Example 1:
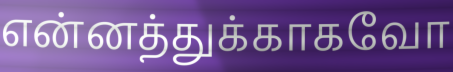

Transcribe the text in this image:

என்னத்துக்காகவோ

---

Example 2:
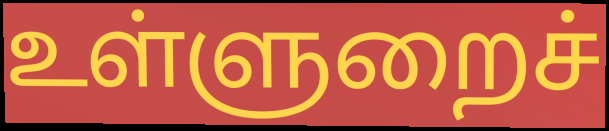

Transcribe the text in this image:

உள்ளுறைச்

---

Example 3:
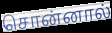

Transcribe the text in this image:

சொன்னால்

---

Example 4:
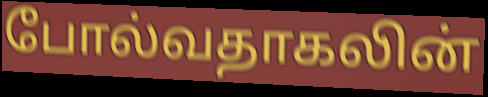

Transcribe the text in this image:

போல்வதாகலின்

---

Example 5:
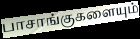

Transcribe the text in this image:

பாசாங்குகளையும்